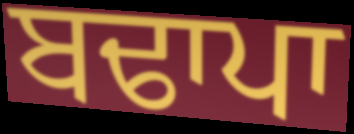
ਬਢਾਪਾ